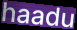
haadu